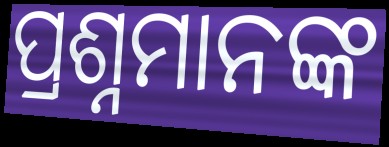
ପ୍ରଶ୍ନମାନଙ୍କ